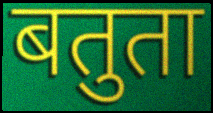
बतुता